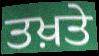
ਤਖ਼ਤੇ